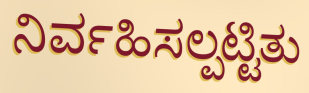
ನಿರ್ವಹಿಸಲ್ಪಟ್ಟಿತು